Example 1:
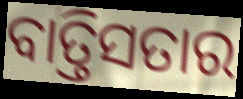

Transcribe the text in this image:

ବାତ୍ତିସତାର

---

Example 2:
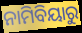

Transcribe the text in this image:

ନାମିବିୟାରୁ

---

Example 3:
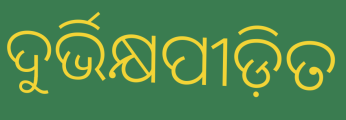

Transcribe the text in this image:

ଦୁର୍ଭିକ୍ଷପୀଡ଼ିତ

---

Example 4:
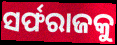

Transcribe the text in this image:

ସର୍ଫରାଜକୁ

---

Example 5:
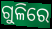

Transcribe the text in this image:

ଗୁଳିରେ